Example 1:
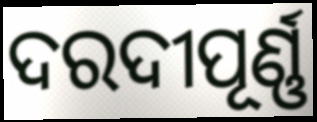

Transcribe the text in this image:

ଦରଦୀପୂର୍ଣ୍ଣ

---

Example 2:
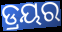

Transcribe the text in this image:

ଡ୍ରୟର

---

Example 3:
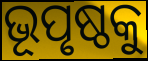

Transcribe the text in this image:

ଭୂପୃଷ୍ଠକୁ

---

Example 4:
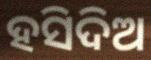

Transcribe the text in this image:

ହସିଦିଅ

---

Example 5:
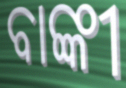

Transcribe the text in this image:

ବାଙ୍କୀ